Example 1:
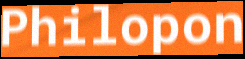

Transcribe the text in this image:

Philopon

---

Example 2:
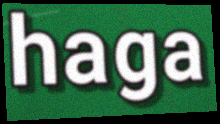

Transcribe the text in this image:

haga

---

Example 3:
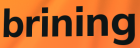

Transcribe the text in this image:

brining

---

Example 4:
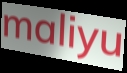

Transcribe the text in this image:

maliyu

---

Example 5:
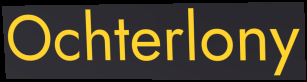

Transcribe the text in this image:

Ochterlony